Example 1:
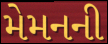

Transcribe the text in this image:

મેમનની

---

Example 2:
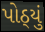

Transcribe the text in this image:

પોઠ્યું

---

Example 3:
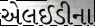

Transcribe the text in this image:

એલઈડીના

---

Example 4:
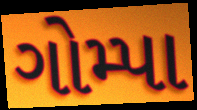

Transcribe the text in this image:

ગોમ્પા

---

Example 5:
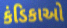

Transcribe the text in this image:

કંડિકાઓ